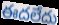
ఈదలేదు